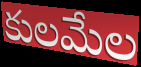
కులమేల